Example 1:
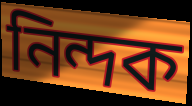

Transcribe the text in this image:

নিন্দক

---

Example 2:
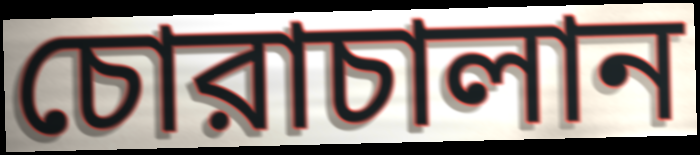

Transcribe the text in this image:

চোরাচালান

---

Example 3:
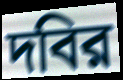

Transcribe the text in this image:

দবির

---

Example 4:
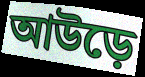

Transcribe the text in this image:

আউড়ে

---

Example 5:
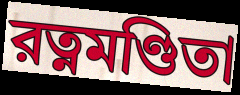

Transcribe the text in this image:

রত্নমণ্ডিতা